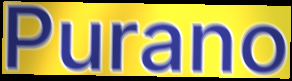
Purano